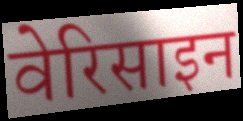
वेरिसाइन